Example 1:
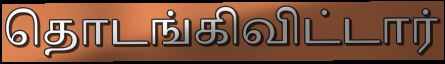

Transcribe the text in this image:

தொடங்கிவிட்டார்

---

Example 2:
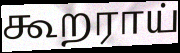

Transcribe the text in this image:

கூறராய்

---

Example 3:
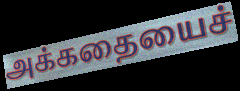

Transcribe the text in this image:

அக்கதையைச்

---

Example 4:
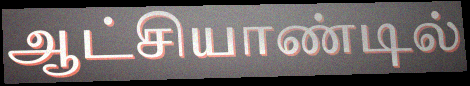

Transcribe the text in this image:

ஆட்சியாண்டில்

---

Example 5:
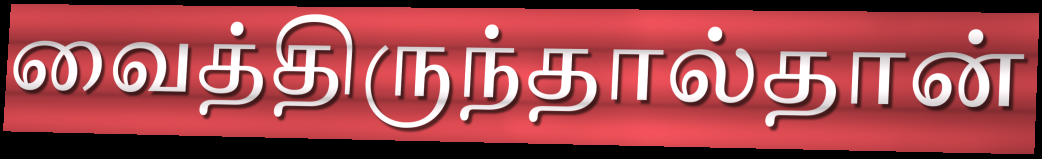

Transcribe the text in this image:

வைத்திருந்தால்தான்